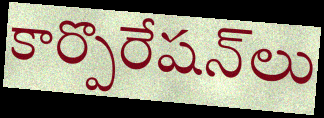
కార్పొరేషన్‌లు